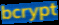
bcrypt